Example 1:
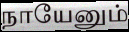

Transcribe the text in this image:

நாயேனும்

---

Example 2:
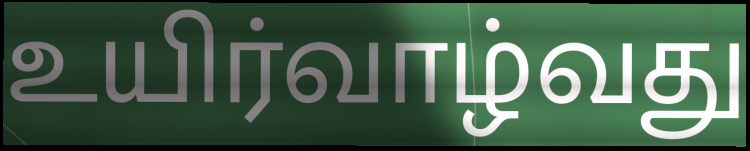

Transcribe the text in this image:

உயிர்வாழ்வது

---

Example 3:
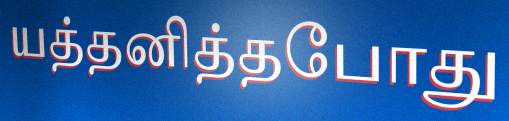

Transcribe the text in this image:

யத்தனித்தபோது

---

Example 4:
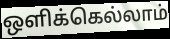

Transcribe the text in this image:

ஒளிக்கெல்லாம்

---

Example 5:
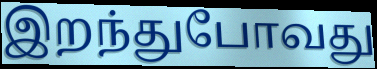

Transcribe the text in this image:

இறந்துபோவது